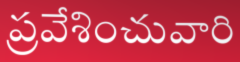
ప్రవేశించువారి